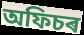
অফিচৰ